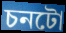
চনটো